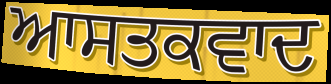
ਆਸਤਕਵਾਦ